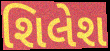
શિલેશ